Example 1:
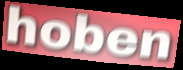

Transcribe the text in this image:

hoben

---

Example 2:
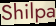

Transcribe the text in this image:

Shilpa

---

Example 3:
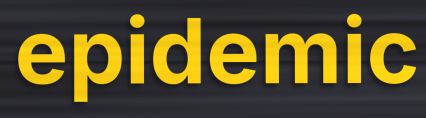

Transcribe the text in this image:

epidemic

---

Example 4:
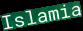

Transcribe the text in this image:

Islamia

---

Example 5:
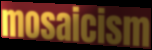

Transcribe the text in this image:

mosaicism